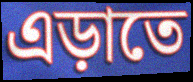
এড়াতে